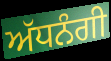
ਅੱਧਨੰਗੀ